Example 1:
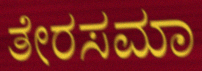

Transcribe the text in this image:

ತೇರಸಮಾ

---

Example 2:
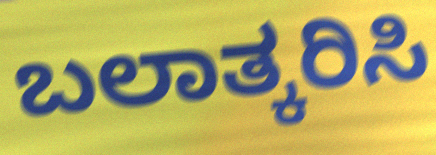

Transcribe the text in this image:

ಬಲಾತ್ಕರಿಸಿ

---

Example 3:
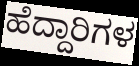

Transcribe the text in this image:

ಹೆದ್ದಾರಿಗಳ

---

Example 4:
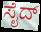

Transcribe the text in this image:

ಸೈದ್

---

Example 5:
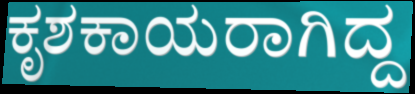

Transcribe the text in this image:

ಕೃಶಕಾಯರಾಗಿದ್ದ